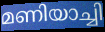
മണിയാച്ചി